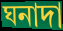
ঘনাদা